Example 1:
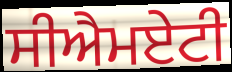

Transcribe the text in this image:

ਸੀਐਮਏਟੀ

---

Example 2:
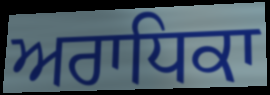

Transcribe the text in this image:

ਅਰਾਧਿਕਾ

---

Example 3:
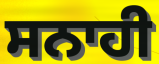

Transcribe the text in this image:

ਸਨਾਹੀ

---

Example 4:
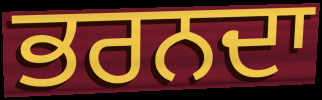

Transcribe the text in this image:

ਭਰਨਦਾ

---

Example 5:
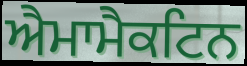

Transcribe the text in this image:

ਐਮਾਮੈਕਟਿਨ